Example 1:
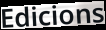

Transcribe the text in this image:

Edicions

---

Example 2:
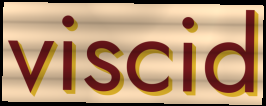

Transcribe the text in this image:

viscid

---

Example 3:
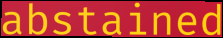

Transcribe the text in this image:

abstained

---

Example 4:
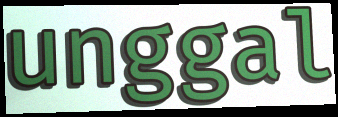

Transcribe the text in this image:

unggal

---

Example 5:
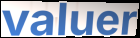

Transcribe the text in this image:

valuer